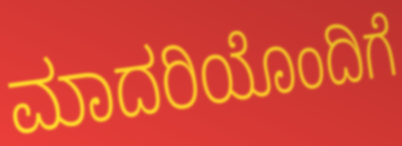
ಮಾದರಿಯೊಂದಿಗೆ